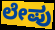
ಲೇಪು